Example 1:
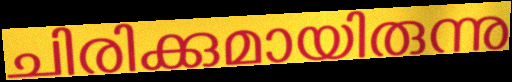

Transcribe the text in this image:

ചിരിക്കുമായിരുന്നു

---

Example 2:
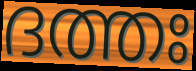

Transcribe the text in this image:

ദത്തഃ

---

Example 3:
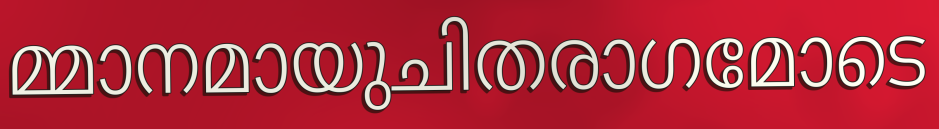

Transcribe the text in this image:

മ്മാനമായുചിതരാഗമോടെ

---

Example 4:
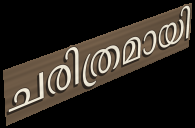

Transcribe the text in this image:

ചരിത്രമായി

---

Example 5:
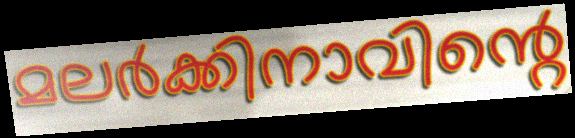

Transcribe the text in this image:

മലർക്കിനാവിന്റെ